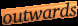
outwards